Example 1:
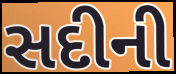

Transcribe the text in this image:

સદીની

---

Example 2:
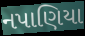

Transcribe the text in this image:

નપાણિયા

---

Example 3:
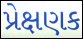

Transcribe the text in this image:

પ્રેક્ષણક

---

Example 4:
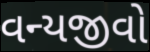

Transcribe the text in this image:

વન્યજીવો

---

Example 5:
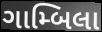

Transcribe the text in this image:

ગામ્બિલા